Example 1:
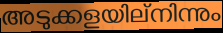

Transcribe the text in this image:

അടുക്കളയില്നിന്നും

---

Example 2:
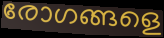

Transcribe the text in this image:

രോഗങ്ങളെ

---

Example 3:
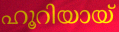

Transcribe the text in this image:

ഹൂറിയായ്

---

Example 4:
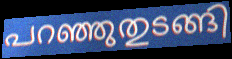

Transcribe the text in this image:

പറഞ്ഞുതുടങ്ങി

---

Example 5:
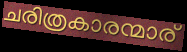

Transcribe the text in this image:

ചരിത്രകാരന്മാര്